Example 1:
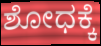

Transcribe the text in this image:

ಶೋಧಕ್ಕೆ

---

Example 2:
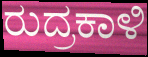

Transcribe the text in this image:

ರುದ್ರಕಾಳಿ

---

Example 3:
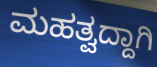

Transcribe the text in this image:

ಮಹತ್ವದ್ದಾಗಿ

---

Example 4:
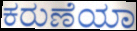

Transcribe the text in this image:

ಕರುಣೆಯಾ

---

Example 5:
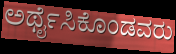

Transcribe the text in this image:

ಅರ್ಥೈಸಿಕೊಂಡವರು